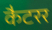
कैटरर